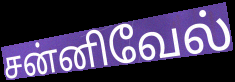
சன்னிவேல்